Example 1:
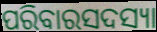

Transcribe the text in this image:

ପରିବାରସଦସ୍ୟା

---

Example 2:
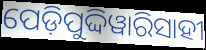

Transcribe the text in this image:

ପେଡ଼ିପୁଦ୍ଦିୱାରିସାହୀ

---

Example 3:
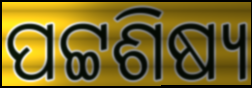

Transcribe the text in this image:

ପଟ୍ଟଶିଷ୍ୟ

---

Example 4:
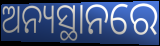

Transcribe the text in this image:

ଅନ୍ୟସ୍ଥାନରେ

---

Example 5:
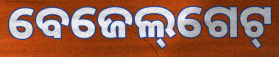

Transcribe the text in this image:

ବେଜେଲ୍‌ଗେଟ୍